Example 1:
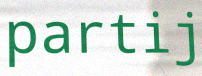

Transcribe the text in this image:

partij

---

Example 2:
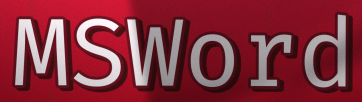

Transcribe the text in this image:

MSWord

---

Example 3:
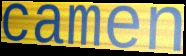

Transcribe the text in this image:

camen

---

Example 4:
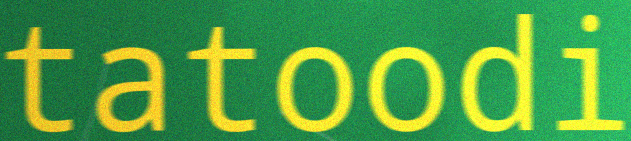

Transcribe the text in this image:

tatoodi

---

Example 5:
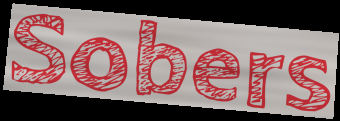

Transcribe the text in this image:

Sobers